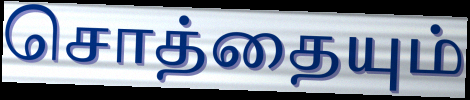
சொத்தையும்